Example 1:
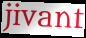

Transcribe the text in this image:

jivant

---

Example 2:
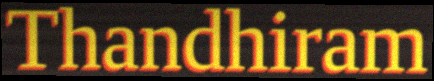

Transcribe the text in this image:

Thandhiram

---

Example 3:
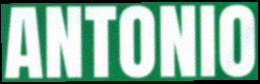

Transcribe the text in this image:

ANTONIO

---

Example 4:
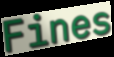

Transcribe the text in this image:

Fines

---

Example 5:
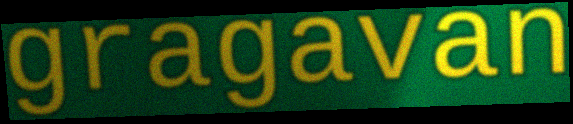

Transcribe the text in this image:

gragavan